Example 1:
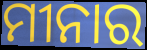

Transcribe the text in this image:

ମୀନାର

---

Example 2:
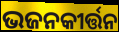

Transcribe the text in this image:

ଭଜନକୀର୍ତ୍ତନ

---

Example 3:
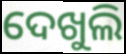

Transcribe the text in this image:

ଦେଖୁଲି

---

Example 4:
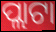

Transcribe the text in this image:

ପ୍ଲାଟା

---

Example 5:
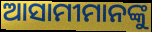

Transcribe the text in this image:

ଆସାମୀମାନଙ୍କୁ